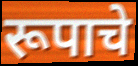
रूपाचे